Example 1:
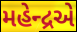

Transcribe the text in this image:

મહેન્દ્રએ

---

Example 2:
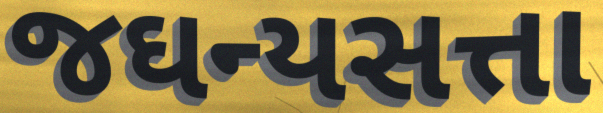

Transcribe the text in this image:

જઘન્યસત્તા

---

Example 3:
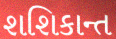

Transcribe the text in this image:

શશિકાન્ત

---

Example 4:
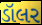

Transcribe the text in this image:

ડૉલર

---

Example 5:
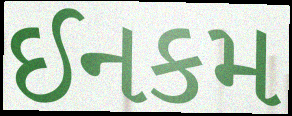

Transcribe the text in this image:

ઈનકમ